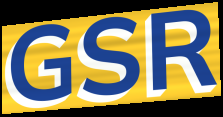
GSR